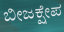
ಬೀಜಕ್ಷೇಪ